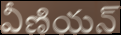
వీణియన్